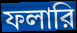
ফলারি